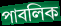
পাবলিক